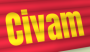
Civam